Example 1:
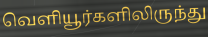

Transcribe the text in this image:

வெளியூர்களிலிருந்து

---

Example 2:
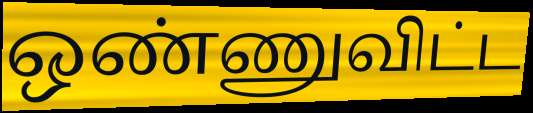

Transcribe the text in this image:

ஒண்ணுவிட்ட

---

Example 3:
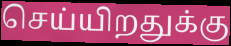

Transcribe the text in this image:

செய்யிறதுக்கு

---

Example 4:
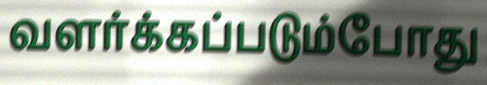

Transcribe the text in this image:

வளர்க்கப்படும்போது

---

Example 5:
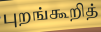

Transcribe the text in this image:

புறங்கூறித்